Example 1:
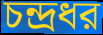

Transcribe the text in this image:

চন্দ্রধর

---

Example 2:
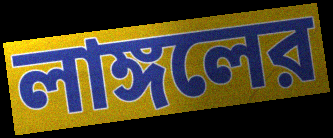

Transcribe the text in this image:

লাঙ্গলের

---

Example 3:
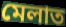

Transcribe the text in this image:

মেলাত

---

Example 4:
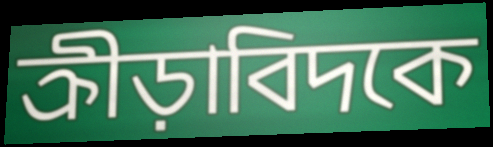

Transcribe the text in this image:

ক্রীড়াবিদকে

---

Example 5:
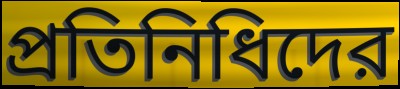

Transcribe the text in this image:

প্রতিনিধিদের